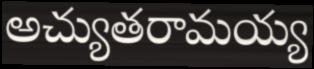
అచ్యుతరామయ్య